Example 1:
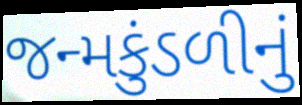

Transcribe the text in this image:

જન્મકુંડળીનું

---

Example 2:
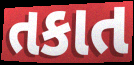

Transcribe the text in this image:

તકાત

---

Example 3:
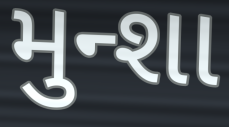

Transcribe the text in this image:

મુન્શા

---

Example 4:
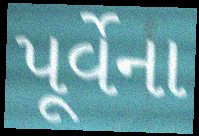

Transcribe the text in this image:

પૂર્વેના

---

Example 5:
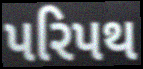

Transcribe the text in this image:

પરિપથ